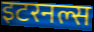
इटरनल्स